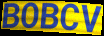
BOBCV